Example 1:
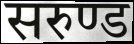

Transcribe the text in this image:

सरुण्ड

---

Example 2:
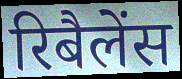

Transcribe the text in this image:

रिबैलेंस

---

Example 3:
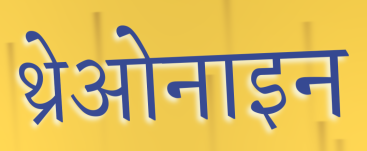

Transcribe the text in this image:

थ्रेओनाइन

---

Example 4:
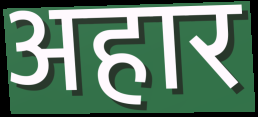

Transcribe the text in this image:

अहार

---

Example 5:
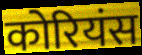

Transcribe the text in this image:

कोरियंस